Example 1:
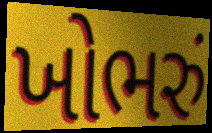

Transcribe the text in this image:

ખોભરું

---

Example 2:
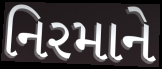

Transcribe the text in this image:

નિરમાને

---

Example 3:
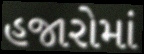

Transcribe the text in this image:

હજારોમાં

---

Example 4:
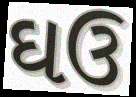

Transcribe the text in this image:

ઘઉ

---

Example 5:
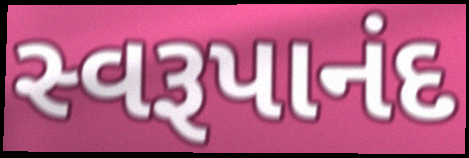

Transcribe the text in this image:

સ્વરૂપાનંદ